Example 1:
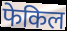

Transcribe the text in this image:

फेकिल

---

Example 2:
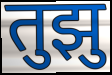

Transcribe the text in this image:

तुझु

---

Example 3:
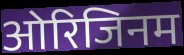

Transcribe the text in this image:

ओरिजिनम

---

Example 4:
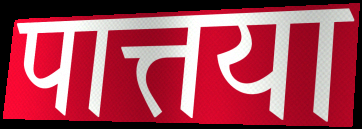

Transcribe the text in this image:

पात्तया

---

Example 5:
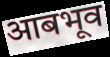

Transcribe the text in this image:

आबभूव